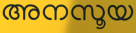
അനസൂയ